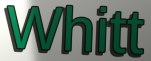
Whitt